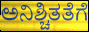
ಅನಿಶ್ಚಿತತೆಗೆ